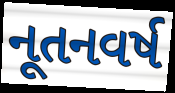
નૂતનવર્ષ